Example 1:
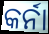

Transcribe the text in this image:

କର୍ନା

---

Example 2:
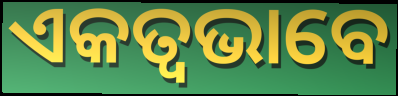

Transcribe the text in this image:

ଏକତ୍ଵଭାବେ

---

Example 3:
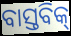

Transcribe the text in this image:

ବାସ୍ତବିକ୍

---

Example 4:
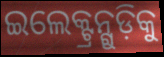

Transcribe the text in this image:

ଇଲେକ୍ଟ୍ରନ୍ଗୁଡ଼ିକୁ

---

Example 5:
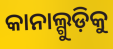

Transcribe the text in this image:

କାନାଲ୍ଗୁଡ଼ିକୁ